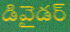
డివైడర్